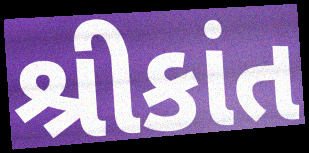
શ્રીકાંત